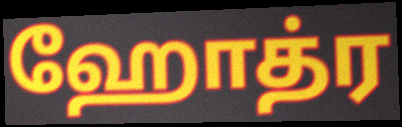
ஹோத்ர